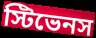
স্টিভেনস